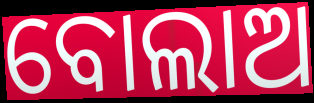
ବୋଲାଅ